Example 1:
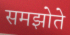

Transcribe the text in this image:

समझोते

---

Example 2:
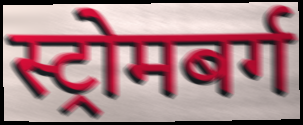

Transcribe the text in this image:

स्ट्रोमबर्ग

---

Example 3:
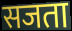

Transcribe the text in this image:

सजता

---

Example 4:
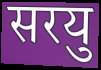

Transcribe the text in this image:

सरयु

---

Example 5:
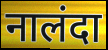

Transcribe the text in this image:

नालंदा